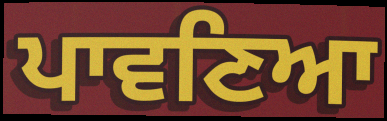
ਪਾਵਣਿਆ